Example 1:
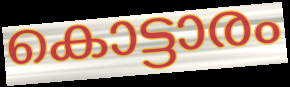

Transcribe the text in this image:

കൊട്ടാരം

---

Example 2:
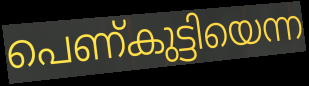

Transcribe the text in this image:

പെണ്കുട്ടിയെന്ന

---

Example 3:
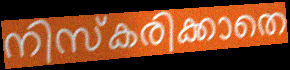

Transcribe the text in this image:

നിസ്കരിക്കാതെ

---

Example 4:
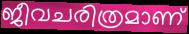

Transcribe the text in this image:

ജീവചരിത്രമാണ്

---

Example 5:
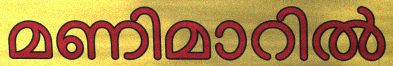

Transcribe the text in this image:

മണിമാറിൽ